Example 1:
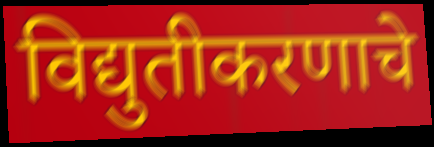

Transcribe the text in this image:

विद्युतीकरणाचे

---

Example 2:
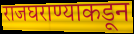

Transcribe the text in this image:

राजघराण्याकडून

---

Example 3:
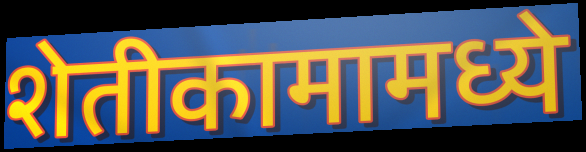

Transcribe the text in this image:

शेतीकामामध्ये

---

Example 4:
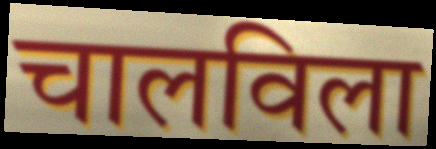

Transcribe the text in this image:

चालविला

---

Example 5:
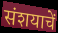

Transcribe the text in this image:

संशयाचें